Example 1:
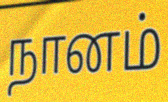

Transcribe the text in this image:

நானம்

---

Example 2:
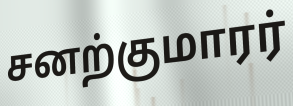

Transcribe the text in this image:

சனற்குமாரர்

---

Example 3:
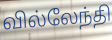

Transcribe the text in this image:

வில்லேந்தி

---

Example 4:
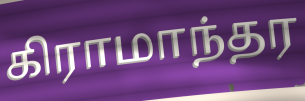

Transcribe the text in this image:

கிராமாந்தர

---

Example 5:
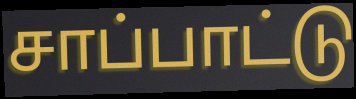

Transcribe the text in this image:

சாப்பாட்டு